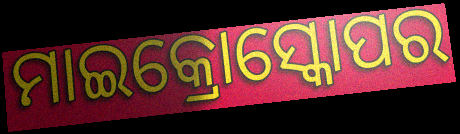
ମାଇକ୍ରୋସ୍କୋପର